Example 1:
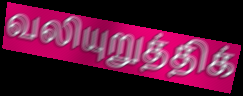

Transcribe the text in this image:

வலியுறுத்திக்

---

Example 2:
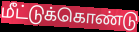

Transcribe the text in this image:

மீட்டுக்கொண்டு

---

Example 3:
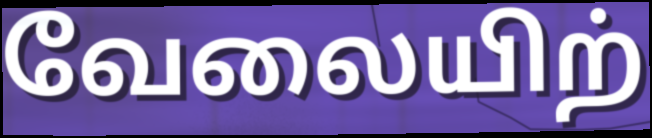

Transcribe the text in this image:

வேலையிற்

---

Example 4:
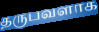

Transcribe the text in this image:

தருபவளாக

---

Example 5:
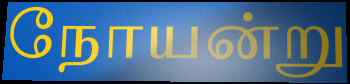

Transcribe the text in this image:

நோயன்று